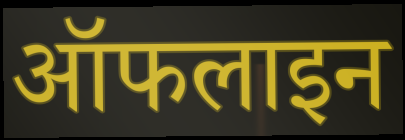
ऑफलाइन